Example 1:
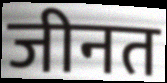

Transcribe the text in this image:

जीनत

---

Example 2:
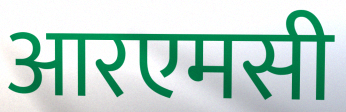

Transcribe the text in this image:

आरएमसी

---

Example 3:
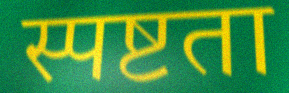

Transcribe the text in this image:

स्पष्टता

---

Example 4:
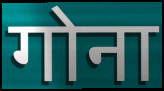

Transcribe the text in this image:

गोना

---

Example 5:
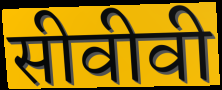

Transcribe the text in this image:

सीवीवी